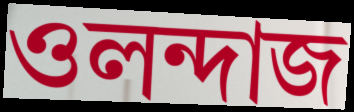
ওলন্দাজ